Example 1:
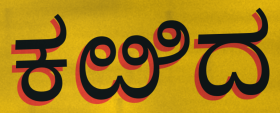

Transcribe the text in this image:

ಕೞಿದ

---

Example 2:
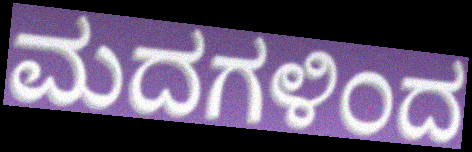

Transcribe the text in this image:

ಮದಗಳಿಂದ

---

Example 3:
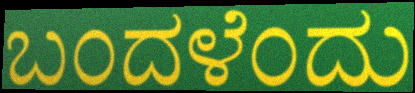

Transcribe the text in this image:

ಬಂದಳೆಂದು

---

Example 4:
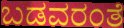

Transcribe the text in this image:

ಬಡವರಂತೆ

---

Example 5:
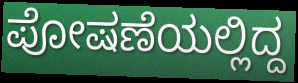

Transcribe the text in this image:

ಪೋಷಣೆಯಲ್ಲಿದ್ದ